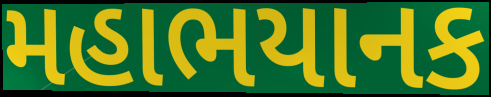
મહાભયાનક